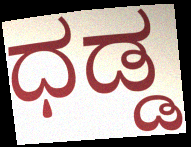
ಧಡ್ಡ